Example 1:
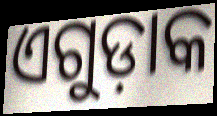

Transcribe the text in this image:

ଏଗୁଡ଼ାକ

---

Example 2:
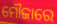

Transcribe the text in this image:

ମୌଜାରେ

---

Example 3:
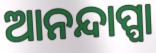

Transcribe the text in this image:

ଆନନ୍ଦାପ୍ପା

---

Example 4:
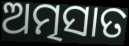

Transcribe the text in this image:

ଅତ୍ମସାତ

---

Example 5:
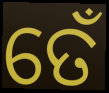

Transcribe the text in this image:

ତେଁ